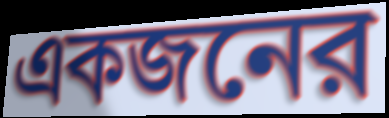
একজনের